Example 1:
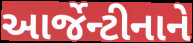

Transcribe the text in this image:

આર્જેન્ટીનાને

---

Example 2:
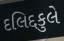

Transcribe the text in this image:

દલિદ્દકુલે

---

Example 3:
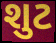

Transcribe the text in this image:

શુટ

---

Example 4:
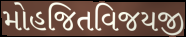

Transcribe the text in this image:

મોહજિતવિજયજી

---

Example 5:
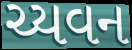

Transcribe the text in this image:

ચ્યવન